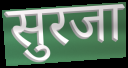
सुरजा